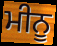
ਮੀਨੂ